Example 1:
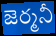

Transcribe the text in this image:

జెర్మనీ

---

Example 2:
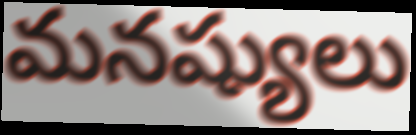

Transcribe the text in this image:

మనష్యులు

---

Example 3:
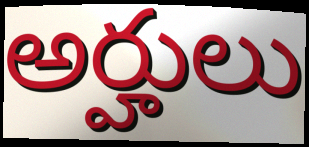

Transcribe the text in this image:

అర్హులు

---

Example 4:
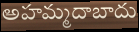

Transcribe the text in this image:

అహమ్మదాబాదు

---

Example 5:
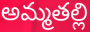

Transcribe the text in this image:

అమ్మతల్లి